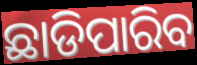
ଛାଡିପାରିବ